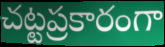
చట్టప్రకారంగా